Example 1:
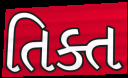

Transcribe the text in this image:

તિક્ત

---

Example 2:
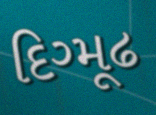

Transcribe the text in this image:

દિગ્મૂઢ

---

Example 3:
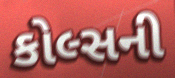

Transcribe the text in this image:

કોલ્સની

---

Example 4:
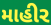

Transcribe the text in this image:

માહીર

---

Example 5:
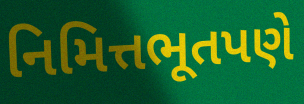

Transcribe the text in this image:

નિમિત્તભૂતપણે